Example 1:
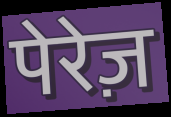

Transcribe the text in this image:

पेरेज़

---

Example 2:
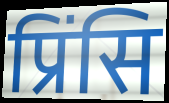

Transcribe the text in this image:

प्रिंसि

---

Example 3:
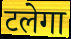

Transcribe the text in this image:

टलेगा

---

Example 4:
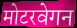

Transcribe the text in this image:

मोटरवेगन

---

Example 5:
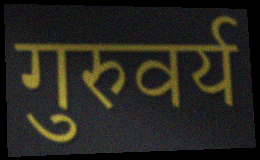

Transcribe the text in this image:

गुरुवर्य